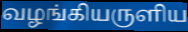
வழங்கியருளிய